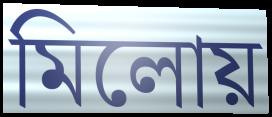
মিলোয়